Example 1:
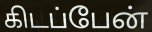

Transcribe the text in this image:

கிடப்பேன்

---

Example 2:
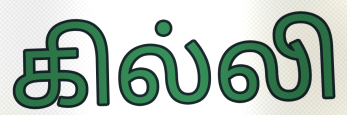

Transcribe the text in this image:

கில்லி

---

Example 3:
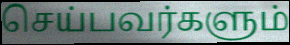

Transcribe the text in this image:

செய்பவர்களும்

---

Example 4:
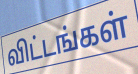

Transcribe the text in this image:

விட்டங்கள்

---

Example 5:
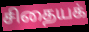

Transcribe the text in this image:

சிதையக்